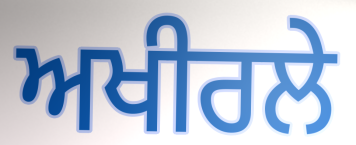
ਅਖੀਰਲੇ